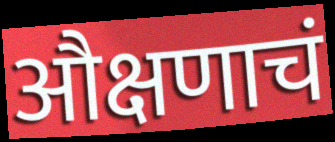
औक्षणाचं